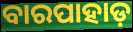
ବାରପାହାଡ଼